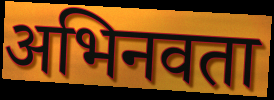
अभिनवता